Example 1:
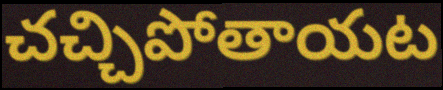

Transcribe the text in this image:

చచ్చిపోతాయట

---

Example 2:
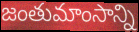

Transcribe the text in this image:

జంతుమాంసాన్ని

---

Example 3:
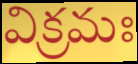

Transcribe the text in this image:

విక్రమః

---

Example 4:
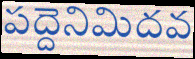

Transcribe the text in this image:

పద్దెనిమిదవ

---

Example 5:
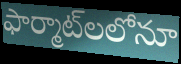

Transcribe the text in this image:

ఫార్మాట్‌లలోనూ